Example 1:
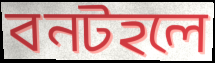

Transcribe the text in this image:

বনটহলে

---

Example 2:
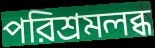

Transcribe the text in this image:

পরিশ্রমলব্ধ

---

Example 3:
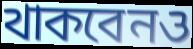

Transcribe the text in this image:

থাকবেনও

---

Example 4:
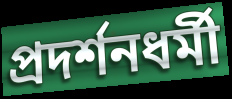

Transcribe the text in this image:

প্রদর্শনধর্মী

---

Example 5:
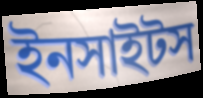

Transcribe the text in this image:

ইনসাইটস